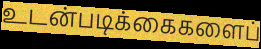
உடன்படிக்கைகளைப்